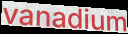
vanadium